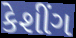
કેશીંગ